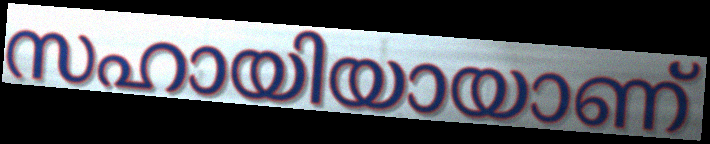
സഹായിയായാണ്